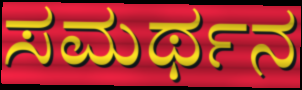
ಸಮರ್ಥನ